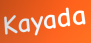
Kayada